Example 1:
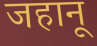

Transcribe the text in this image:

जहानू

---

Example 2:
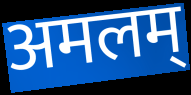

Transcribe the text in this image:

अमलम्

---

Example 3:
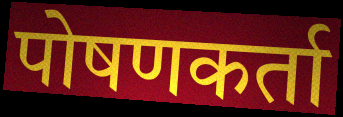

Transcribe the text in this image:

पोषणकर्ता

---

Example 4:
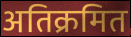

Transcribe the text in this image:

अतिक्रमित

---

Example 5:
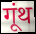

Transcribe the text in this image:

गूंथ